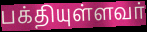
பக்தியுள்ளவர்